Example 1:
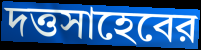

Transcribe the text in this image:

দত্তসাহেবের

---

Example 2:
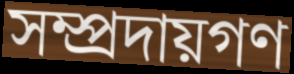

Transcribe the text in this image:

সম্প্রদায়গণ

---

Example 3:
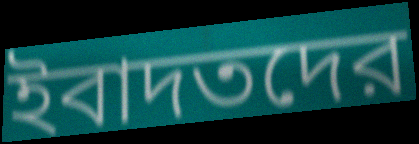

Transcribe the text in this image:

ইবাদতদের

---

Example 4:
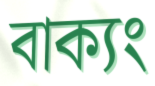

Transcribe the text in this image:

বাক্যং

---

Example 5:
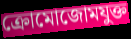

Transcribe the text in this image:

ক্রোমোজোমযুক্ত